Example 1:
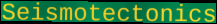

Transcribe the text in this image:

Seismotectonics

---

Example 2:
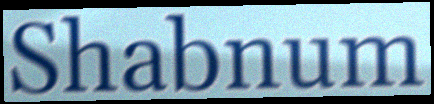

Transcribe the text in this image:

Shabnum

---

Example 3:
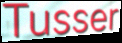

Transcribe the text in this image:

Tusser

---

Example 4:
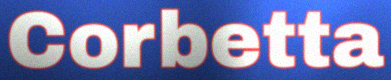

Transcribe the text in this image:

Corbetta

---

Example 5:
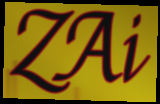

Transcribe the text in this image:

ZAi